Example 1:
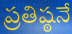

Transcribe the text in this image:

ప్రతిష్ఠనే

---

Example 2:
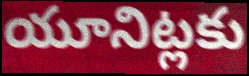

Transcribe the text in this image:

యూనిట్లకు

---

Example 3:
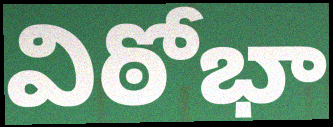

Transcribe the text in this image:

విఠోభా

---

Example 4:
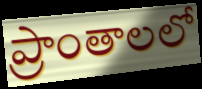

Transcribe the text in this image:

ప్రాంతాలలో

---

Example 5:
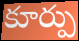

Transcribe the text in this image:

కూర్పు